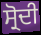
ਸ੍ਰੋਦੀ